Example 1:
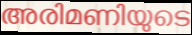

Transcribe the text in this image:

അരിമണിയുടെ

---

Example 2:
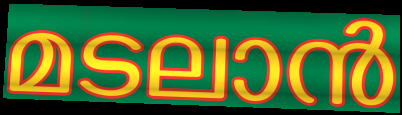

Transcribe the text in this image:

മടലാൻ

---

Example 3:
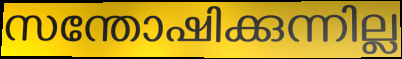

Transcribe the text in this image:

സന്തോഷിക്കുന്നില്ല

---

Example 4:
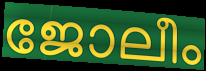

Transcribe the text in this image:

ജോലീം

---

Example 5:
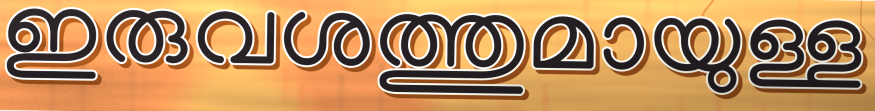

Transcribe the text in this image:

ഇരുവശത്തുമായുള്ള